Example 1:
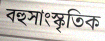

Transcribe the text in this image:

বহুসাংস্কৃতিক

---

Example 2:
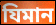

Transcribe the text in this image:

যিমান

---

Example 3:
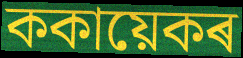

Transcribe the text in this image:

ককায়েকৰ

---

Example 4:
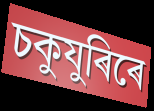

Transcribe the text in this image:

চকুযুৰিৰে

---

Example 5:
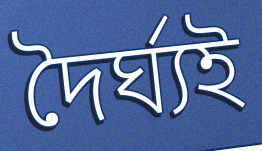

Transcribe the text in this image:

দৈৰ্ঘ্যই